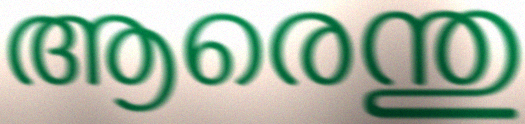
ആരെന്തു